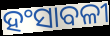
ହଂସାବଳୀ